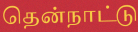
தென்நாட்டு